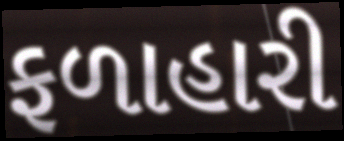
ફળાહારી